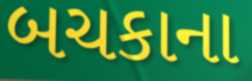
બચકાના